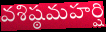
వశిష్ఠమహర్షి